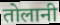
तोलानी